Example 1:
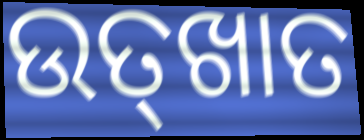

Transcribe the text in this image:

ଉତ୍‌ଖାତ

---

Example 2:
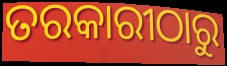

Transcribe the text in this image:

ତରକାରୀଠାରୁ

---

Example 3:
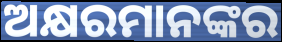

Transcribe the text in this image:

ଅକ୍ଷରମାନଙ୍କର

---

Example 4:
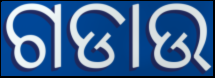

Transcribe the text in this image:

ଗଡାଉ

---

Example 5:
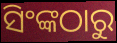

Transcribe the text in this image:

ସିଂଙ୍କଠାରୁ